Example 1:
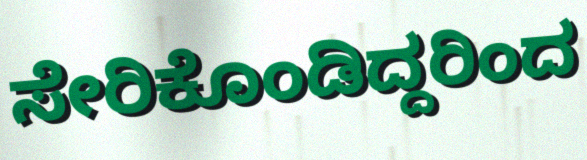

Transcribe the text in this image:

ಸೇರಿಕೊಂಡಿದ್ದರಿಂದ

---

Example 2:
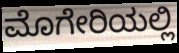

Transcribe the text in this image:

ಮೊಗೇರಿಯಲ್ಲಿ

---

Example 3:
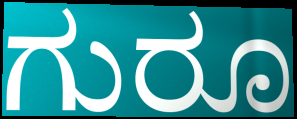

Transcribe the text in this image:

ಗುರೂ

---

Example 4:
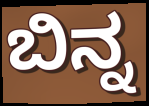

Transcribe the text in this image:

ಬಿನ್ನ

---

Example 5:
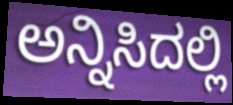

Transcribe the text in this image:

ಅನ್ನಿಸಿದಲ್ಲಿ